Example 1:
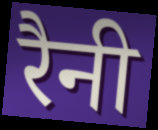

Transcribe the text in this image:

रैनी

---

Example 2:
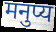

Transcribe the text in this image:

मनुप्य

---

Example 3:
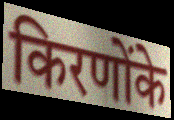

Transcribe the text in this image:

किरणोंके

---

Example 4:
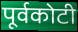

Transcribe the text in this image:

पूर्वकोटी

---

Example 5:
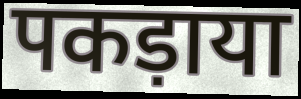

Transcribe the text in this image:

पकड़ाया